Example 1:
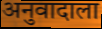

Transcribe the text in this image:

अनुवादाला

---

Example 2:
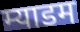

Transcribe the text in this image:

म्याडम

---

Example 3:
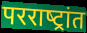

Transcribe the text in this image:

परराष्ट्रांत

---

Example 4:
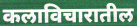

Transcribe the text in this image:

कलाविचारातील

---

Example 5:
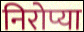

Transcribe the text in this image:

निरोप्या